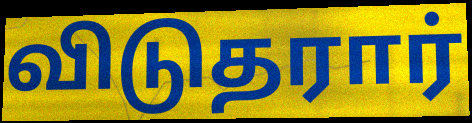
விடுதரார்